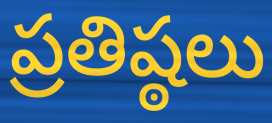
ప్రతిష్ఠలు